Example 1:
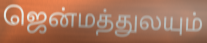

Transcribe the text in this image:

ஜென்மத்துலயும்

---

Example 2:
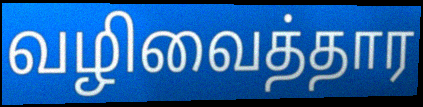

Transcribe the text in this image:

வழிவைத்தார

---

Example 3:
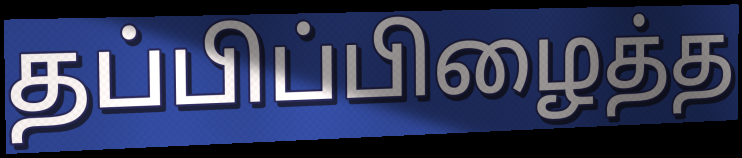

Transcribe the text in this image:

தப்பிப்பிழைத்த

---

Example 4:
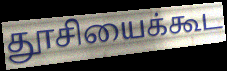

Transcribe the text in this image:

தூசியைக்கூட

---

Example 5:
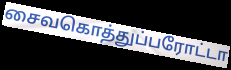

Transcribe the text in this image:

சைவகொத்துப்பரோட்டா